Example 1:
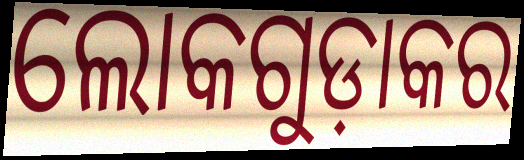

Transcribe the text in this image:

ଲୋକଗୁଡ଼ାକର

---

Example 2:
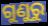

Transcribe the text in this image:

ଗୁଣୁରୁ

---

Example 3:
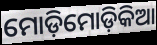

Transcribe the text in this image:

ମୋଡ଼ିମୋଡ଼ିକିଆ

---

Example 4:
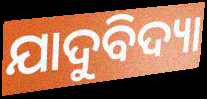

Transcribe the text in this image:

ଯାଦୁବିଦ୍ୟା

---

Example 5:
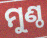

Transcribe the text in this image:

ମୁଣ୍ଠ